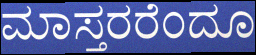
ಮಾಸ್ತರರೆಂದೂ